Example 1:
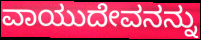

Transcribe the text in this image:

ವಾಯುದೇವನನ್ನು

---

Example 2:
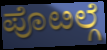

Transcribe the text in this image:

ಪೊೞಲ್ಗೆ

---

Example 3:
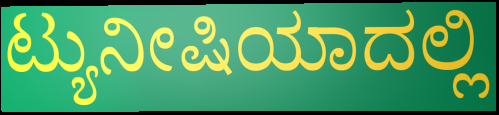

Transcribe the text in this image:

ಟ್ಯುನೀಷಿಯಾದಲ್ಲಿ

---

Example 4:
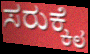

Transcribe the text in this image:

ಸರುಕ್ಕೈ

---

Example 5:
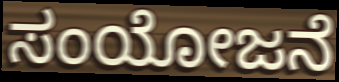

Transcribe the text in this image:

ಸಂಯೋಜನೆ